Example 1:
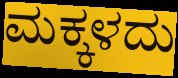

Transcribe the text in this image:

ಮಕ್ಕಳದು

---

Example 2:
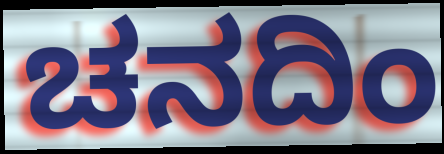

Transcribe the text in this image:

ಚನದಿಂ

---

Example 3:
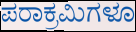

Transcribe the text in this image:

ಪರಾಕ್ರಮಿಗಳೂ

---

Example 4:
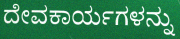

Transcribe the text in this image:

ದೇವಕಾರ್ಯಗಳನ್ನು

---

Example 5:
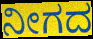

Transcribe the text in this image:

ನೀಗದ